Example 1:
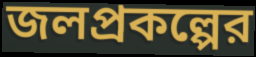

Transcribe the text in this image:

জলপ্রকল্পের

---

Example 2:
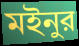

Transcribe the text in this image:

মইনুর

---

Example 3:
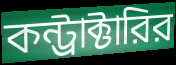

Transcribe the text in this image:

কন্ট্রাক্টারির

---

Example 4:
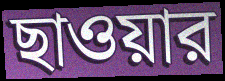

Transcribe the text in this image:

ছাওয়ার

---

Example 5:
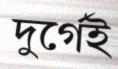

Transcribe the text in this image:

দুর্গেই